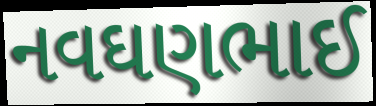
નવઘણભાઈ